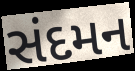
સંદમન